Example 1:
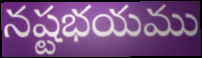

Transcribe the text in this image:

నష్టభయము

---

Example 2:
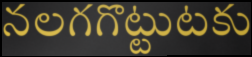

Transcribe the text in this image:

నలగగొట్టుటకు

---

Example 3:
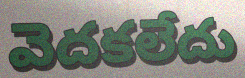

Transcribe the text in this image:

వెదకలేదు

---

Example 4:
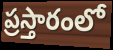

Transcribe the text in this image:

ప్రస్తారంలో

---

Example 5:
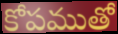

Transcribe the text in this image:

కోపముతో